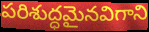
పరిశుద్ధమైనవిగాని